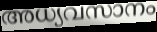
അധ്യവസാനം